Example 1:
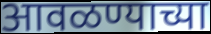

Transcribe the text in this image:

आवळण्याच्या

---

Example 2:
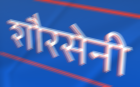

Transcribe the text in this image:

शौरसेनी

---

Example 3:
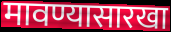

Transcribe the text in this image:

मावण्यासारखा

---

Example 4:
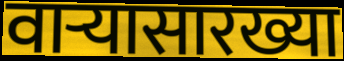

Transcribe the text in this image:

वाऱ्यासारख्या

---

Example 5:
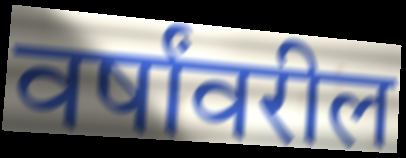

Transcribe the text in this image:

वर्षांवरील